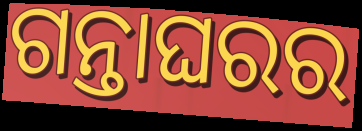
ଗନ୍ତାଘରର